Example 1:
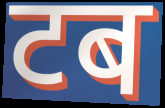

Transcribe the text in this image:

टब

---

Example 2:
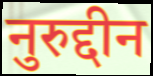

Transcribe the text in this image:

नुरुद्दीन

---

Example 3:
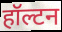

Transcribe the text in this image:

हॉल्टन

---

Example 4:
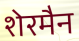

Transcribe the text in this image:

शेरमैन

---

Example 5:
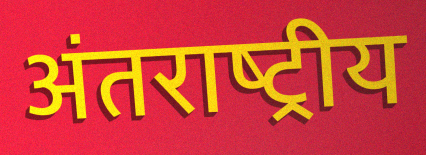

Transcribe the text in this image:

अंतराष्ट्रीय